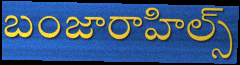
బంజారాహిల్స్